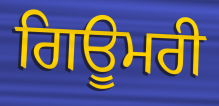
ਗਿਊਮਰੀ